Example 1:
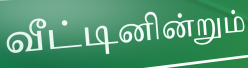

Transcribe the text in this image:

வீட்டினின்றும்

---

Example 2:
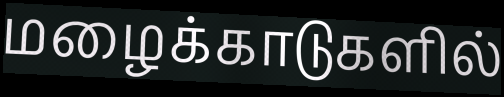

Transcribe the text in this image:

மழைக்காடுகளில்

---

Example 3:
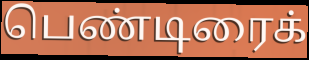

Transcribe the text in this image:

பெண்டிரைக்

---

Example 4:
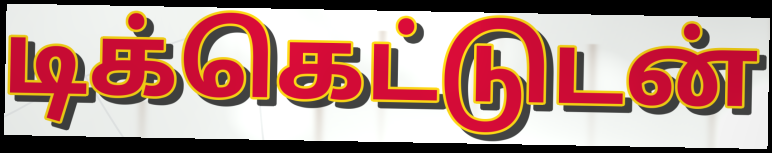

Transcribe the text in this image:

டிக்கெட்டுடன்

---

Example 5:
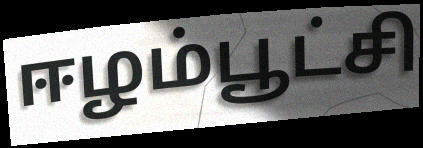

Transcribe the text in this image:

ஈழம்பூட்சி